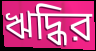
ঋদ্ধির